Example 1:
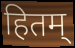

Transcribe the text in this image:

हितम्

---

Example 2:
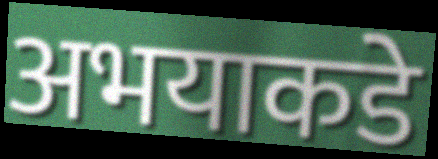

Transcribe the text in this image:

अभयाकडे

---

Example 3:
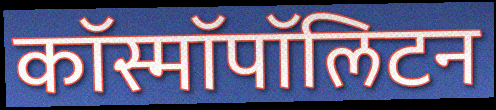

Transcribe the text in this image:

कॉस्मॉपॉलिटन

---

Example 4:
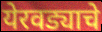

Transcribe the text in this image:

येरवड्याचे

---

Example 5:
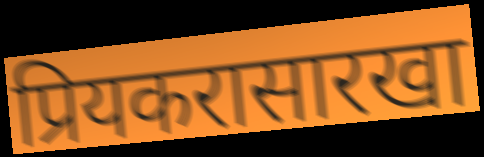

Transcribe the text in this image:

प्रियकरासारखा